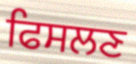
ਫਿਸਲਣ